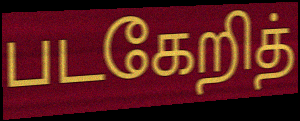
படகேறித்